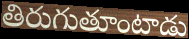
తిరుగుతూంటాడు